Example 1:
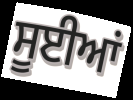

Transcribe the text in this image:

ਸੂਈਆਂ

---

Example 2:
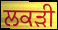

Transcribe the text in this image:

ਲਕੜੀ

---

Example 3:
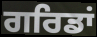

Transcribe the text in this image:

ਗਰਿਡਾਂ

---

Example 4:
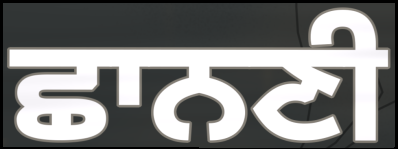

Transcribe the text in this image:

ਛਾਨਣੀ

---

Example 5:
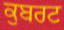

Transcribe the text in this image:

ਕੁਬਰਟ